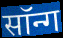
सॉन्ग